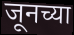
जूनच्या